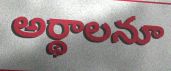
అర్థాలనూ